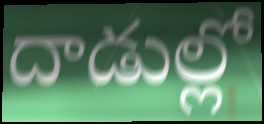
దాడుల్లో